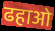
ढहाओ